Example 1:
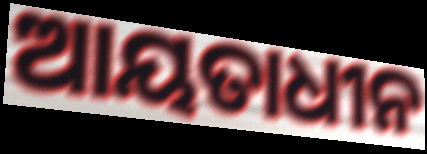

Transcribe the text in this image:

ଆୟତାଧୀନ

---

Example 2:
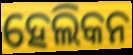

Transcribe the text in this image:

ହେଲିକନ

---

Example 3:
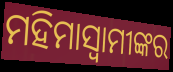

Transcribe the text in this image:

ମହିମାସ୍ୱାମୀଙ୍କର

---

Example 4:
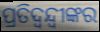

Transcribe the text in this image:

ପ୍ରତିଦ୍ୱନ୍ଦ୍ୱୀଙ୍କର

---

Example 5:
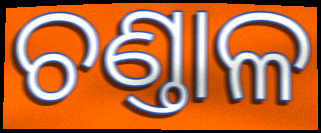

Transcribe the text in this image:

ଚଣ୍ତାଳ